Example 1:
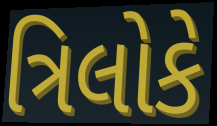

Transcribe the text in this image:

ત્રિલોકે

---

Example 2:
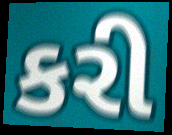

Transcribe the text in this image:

કરી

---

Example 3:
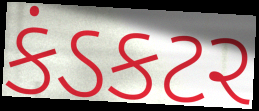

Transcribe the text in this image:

કંડકટર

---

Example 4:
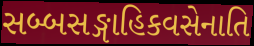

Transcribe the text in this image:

સબ્બસઙ્ગાહિકવસેનાતિ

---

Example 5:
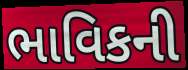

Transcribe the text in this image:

ભાવિકની